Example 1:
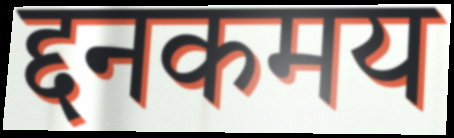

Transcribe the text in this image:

द्दनकमय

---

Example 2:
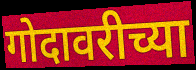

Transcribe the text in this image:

गोदावरीच्या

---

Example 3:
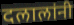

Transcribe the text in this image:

दलालांनी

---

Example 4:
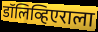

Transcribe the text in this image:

डॉलिव्हिएराला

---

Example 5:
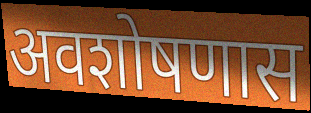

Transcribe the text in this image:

अवशोषणास